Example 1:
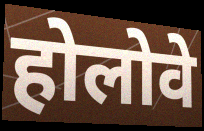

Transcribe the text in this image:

होलोवे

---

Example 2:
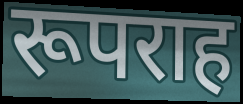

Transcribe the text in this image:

रूपराह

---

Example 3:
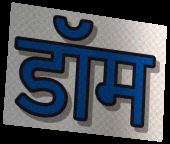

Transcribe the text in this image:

डॉम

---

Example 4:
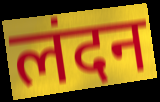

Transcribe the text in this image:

लंदन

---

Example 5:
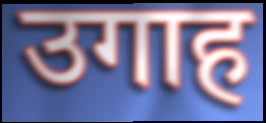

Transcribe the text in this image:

उगाह